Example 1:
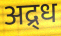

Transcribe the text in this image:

अद्र्ध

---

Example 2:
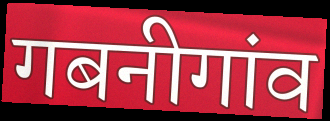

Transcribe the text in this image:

गबनीगांव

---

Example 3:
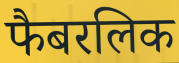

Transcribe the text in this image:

फैबरलिक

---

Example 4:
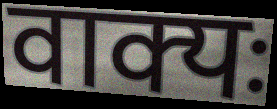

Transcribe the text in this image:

वाक्यः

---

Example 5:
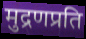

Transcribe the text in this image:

मुद्रणप्रति